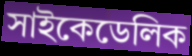
সাইকেডেলিক